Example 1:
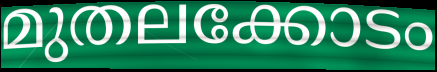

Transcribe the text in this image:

മുതലക്കോടം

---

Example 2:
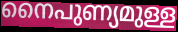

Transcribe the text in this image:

നൈപുണ്യമുള്ള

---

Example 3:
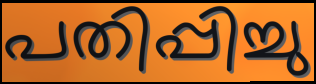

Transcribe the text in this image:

പതിപ്പിച്ചു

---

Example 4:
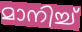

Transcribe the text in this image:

മാനിച്ച്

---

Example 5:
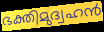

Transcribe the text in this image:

ഭക്തിമുദ്വഹൻ